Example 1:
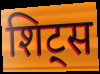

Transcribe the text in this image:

शिट्स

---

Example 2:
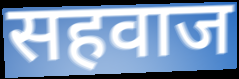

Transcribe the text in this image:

सहवाज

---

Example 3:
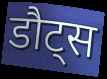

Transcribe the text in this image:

डौट्स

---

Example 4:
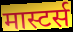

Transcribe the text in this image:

मास्टर्स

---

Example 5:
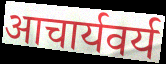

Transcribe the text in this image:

आचार्यवर्य